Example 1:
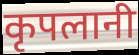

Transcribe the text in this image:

कृपलानी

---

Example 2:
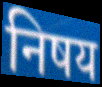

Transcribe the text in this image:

निषय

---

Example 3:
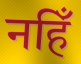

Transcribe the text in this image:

नहिँ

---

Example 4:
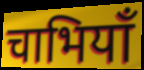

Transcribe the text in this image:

चाभियाँ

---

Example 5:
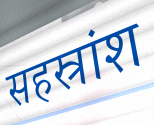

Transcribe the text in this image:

सहस्रांश